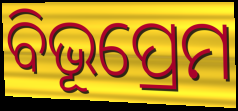
ବିଭୂପ୍ରେମ